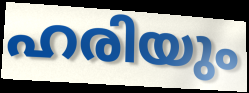
ഹരിയും